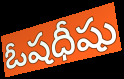
ఓషధీషు